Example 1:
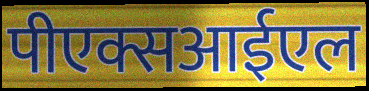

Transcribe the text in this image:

पीएक्सआईएल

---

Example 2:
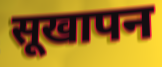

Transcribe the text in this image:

सूखापन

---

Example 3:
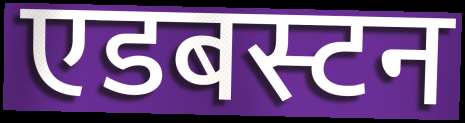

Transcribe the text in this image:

एडबस्टन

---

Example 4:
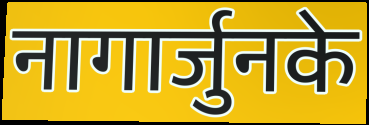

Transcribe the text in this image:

नागार्जुनके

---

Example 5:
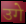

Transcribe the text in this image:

उगे